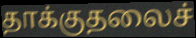
தாக்குதலைச்